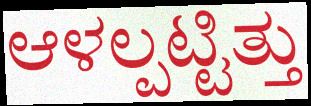
ಆಳಲ್ಪಟ್ಟಿತ್ತು